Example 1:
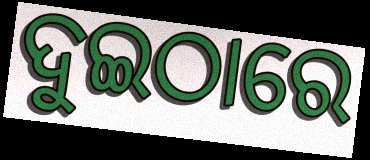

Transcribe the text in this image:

ଦୁଇଠାରେ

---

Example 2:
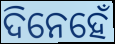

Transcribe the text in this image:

ଦିନେହେଁ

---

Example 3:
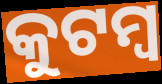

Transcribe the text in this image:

କୁଟମ୍ୱ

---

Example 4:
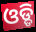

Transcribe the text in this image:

ଓଡ୍ଡି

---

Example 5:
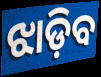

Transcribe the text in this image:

ଝାଡ଼ିବ